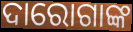
ଦାରୋଗାଙ୍କ